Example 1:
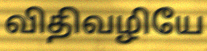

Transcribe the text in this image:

விதிவழியே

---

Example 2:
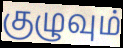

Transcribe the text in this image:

குழுவும்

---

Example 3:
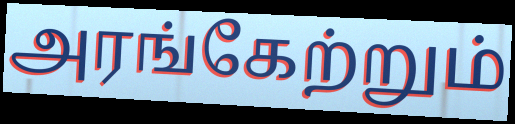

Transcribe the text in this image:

அரங்கேற்றும்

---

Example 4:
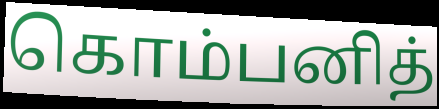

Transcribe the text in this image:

கொம்பனித்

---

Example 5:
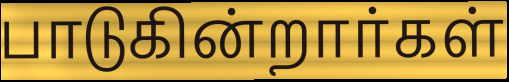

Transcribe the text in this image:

பாடுகின்றார்கள்